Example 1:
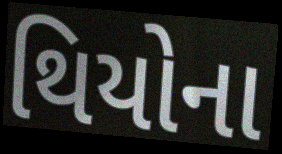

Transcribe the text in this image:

થિયોના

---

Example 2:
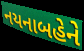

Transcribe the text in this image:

નયનાબહેને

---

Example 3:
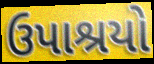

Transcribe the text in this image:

ઉપાશ્રયો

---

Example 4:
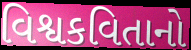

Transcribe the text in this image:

વિશ્વકવિતાનો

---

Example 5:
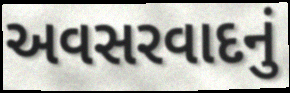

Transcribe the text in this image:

અવસરવાદનું